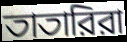
তাতারিরা